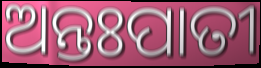
ଅନ୍ତଃପାତୀ